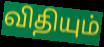
விதியும்